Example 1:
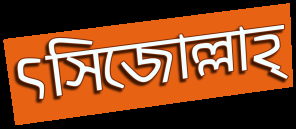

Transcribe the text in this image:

ৎসিজোল্লাহ্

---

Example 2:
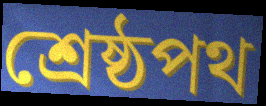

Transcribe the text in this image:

শ্রেষ্ঠপথ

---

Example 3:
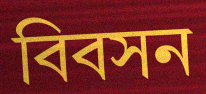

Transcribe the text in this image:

বিবসন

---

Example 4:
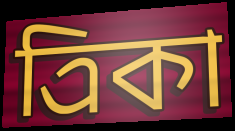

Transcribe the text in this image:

ত্রিকা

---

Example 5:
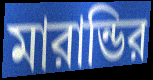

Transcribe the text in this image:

মারান্ডির